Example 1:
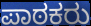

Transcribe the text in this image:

ಪಾಠಕರು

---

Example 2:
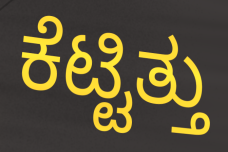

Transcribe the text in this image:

ಕೆಟ್ಟಿತ್ತು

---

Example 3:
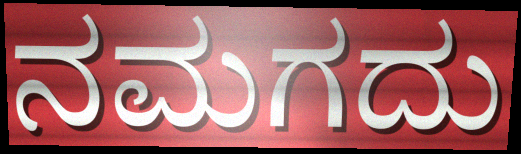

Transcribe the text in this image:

ನಮಗದು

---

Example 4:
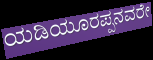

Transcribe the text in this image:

ಯಡಿಯೂರಪ್ಪನವರೇ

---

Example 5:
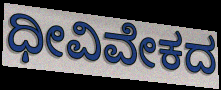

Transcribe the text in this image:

ಧೀವಿವೇಕದ